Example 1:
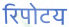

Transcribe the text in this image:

रिपोटय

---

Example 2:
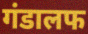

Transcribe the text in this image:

गंडालफ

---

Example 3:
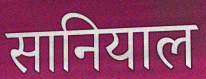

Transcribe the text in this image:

सानियाल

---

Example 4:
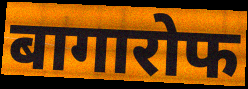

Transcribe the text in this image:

बागारोफ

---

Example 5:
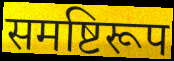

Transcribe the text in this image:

समष्टिरूप